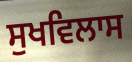
ਸੁਖਵਿਲਾਸ